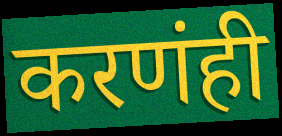
करणंही